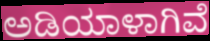
ಅಡಿಯಾಳಾಗಿವೆ